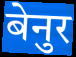
बेनुर